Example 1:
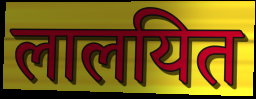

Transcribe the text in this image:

लालयित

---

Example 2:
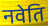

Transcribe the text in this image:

नवेति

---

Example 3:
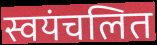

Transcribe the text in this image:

स्वयंचलित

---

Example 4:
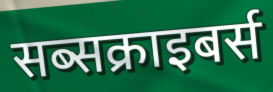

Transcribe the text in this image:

सब्सक्राइबर्स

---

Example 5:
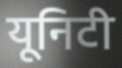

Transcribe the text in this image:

यूनिटी